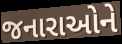
જનારાઓને